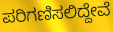
ಪರಿಗಣಿಸಲಿದ್ದೇವೆ